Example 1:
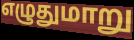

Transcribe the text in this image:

எழுதுமாறு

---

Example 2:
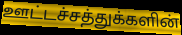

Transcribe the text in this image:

ஊட்டச்சத்துக்களின்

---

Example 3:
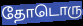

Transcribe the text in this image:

தோடொரு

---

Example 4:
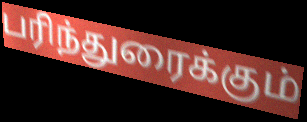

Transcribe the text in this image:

பரிந்துரைக்கும்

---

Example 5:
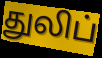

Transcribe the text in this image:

துலிப்